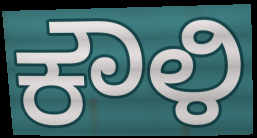
ಕೌಳಿ